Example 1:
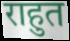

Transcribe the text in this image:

राहुत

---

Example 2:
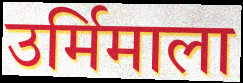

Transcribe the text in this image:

उर्मिमाला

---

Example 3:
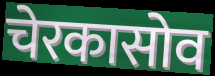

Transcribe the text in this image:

चेरकासोव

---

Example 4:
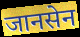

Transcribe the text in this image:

जानसेन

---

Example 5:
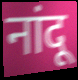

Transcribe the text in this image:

नांदू